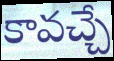
కావచ్చే